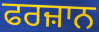
ਫਰਜ਼ਾਨ